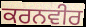
ਕਰਨਵੀਰ